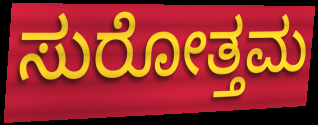
ಸುರೋತ್ತಮ